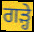
ਗੜ੍ਹੇ